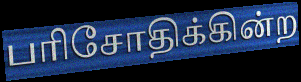
பரிசோதிக்கின்ற